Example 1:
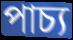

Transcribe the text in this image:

পাচ্য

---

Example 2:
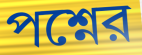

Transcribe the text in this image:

পশ্নের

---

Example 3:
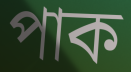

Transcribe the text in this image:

পাক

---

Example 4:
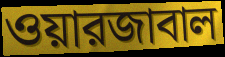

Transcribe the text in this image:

ওয়ারজাবাল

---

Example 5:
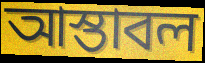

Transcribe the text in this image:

আস্তাবল